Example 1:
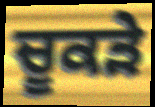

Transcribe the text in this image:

ਚੂਕੜੇ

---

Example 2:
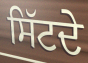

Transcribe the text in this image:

ਸਿੱਟਦੇ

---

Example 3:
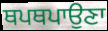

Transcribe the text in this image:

ਥਪਥਪਾਉਣਾ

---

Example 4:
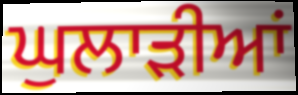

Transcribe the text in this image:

ਘੁਲਾੜੀਆਂ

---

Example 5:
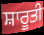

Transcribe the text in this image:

ਸ਼ਾਰੂਤੀ